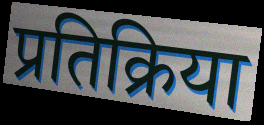
प्रतिक्रिया